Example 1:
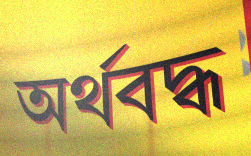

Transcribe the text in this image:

অর্থবদ্ধ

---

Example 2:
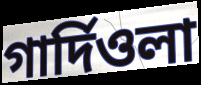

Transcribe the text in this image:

গার্দিওলা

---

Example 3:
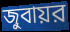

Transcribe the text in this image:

জুবায়র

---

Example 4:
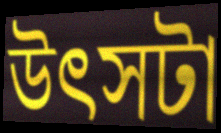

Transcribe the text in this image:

উৎসটা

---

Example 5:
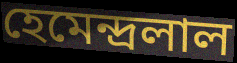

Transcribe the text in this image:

হেমেন্দ্রলাল